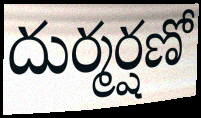
దుర్మర్షణో